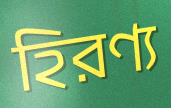
হিরণ্য